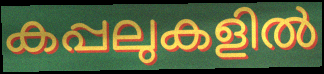
കപ്പലുകളിൽ